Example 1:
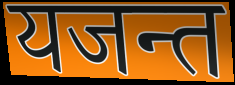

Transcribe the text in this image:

यजन्त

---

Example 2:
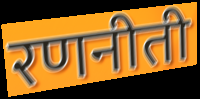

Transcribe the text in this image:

रणनीती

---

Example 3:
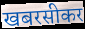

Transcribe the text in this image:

खबरसीकर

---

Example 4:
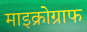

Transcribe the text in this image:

माइक्रोग्राफ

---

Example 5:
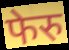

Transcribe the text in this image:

फेरु